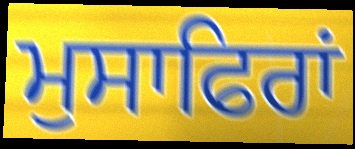
ਮੁਸਾਫਿਰਾਂ